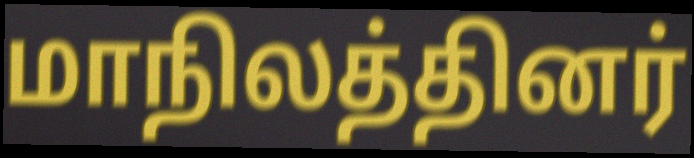
மாநிலத்தினர்